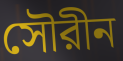
সৌরীন